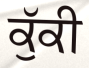
ਕੁੱਕੀ